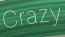
Crazy